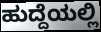
ಹುದ್ದೆಯಲ್ಲಿ